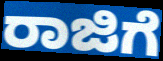
ರಾಜಿಗೆ